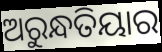
ଅରୁନ୍ଧତିୟାର